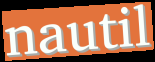
nautil